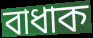
বাধাক